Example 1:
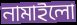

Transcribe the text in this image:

নামাইলো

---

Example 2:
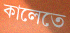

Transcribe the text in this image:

কালেতে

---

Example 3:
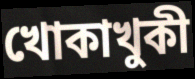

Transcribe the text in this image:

খোকাখুকী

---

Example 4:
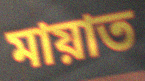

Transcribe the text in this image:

মায়াত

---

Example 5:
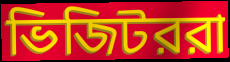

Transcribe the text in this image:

ভিজিটররা